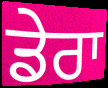
ਡੇਰਾ